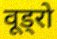
वूड्रो